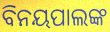
ବିନୟପାଲଙ୍କ